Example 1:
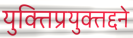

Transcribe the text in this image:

युक्तिप्रयुक्तद्दने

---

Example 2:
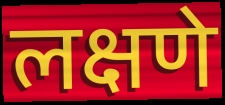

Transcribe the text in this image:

लक्षणे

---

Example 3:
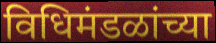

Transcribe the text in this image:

विधिमंडळांच्या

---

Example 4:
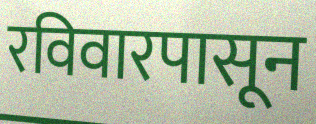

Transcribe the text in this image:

रविवारपासून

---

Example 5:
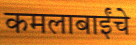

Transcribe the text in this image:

कमलाबाईंचे